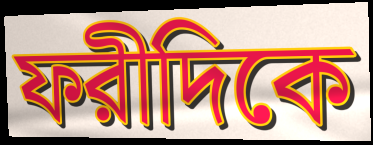
ফরীদিকে